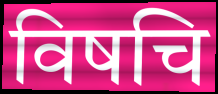
विषचि